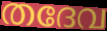
തദേവ